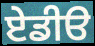
ਏਡੀੳ